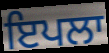
ਇਪਲਾ